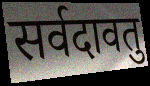
सर्वदावतु